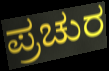
ಪ್ರಚುರ